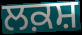
ਲਕ਼ਸ਼